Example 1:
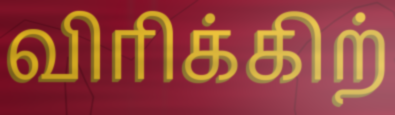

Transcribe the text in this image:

விரிக்கிற்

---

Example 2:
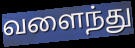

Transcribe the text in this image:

வளைந்து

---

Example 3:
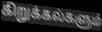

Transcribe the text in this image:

கிறுக்கல்களும்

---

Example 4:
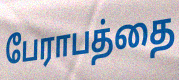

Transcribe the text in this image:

பேராபத்தை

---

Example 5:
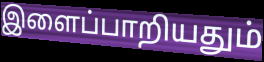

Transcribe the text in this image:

இளைப்பாறியதும்